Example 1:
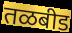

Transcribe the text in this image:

तळबीड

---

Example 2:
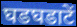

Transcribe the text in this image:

घडघडाटें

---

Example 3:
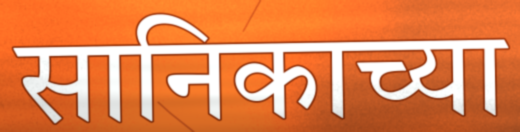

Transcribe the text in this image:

सानिकाच्या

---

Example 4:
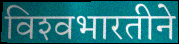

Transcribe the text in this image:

विश्वभारतीने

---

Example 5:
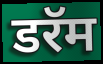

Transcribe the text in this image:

डरॅम